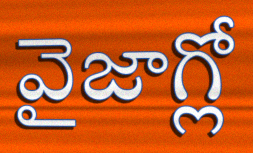
వైజాగ్లో